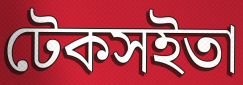
টেকসইতা